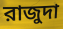
রাজুদা